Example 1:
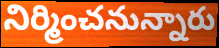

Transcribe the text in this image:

నిర్మించనున్నారు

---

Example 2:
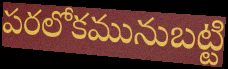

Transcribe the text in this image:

పరలోకమునుబట్టి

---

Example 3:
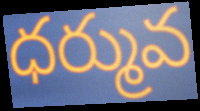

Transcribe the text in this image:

ధర్మువ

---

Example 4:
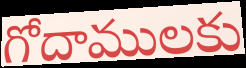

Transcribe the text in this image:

గోదాములకు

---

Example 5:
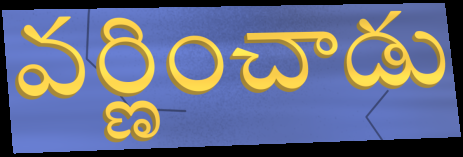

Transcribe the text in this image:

వర్ణించాడు